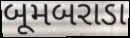
બૂમબરાડા